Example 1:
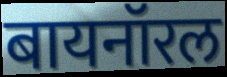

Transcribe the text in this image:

बायनॉरल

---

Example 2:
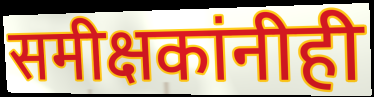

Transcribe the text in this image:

समीक्षकांनीही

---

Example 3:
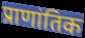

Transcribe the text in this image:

प्राणांतिक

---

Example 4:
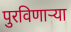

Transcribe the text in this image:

पुरविणार्‍या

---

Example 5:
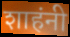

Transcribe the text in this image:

शाहंनी